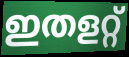
ഇതളറ്റ്